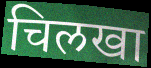
चिलखा